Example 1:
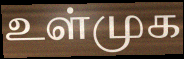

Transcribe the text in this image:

உள்முக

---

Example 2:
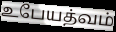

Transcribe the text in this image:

உபேயத்வம்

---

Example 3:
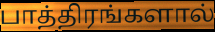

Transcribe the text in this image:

பாத்திரங்களால்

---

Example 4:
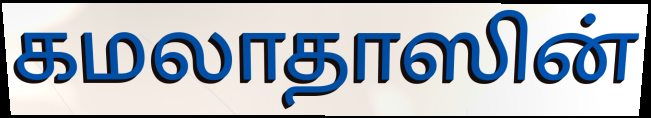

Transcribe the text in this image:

கமலாதாஸின்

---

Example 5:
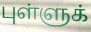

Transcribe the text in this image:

புள்ளுக்